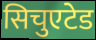
सिचुएटेड